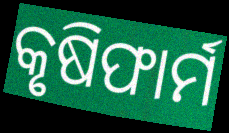
କୃଷିଫାର୍ମ